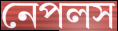
নেপলস